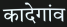
कादेगांव